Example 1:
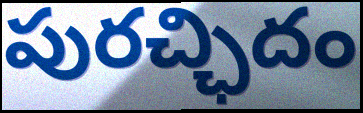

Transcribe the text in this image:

పురచ్ఛిదం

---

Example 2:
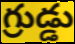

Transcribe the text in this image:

గ్రుడ్డు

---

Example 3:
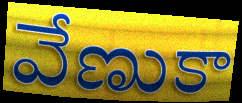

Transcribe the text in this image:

వేణుకా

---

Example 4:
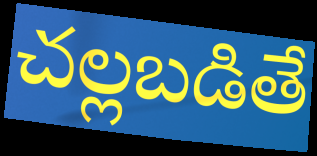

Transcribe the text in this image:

చల్లబడితే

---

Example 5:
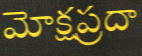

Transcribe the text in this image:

మోక్షప్రదా